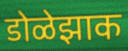
डोळेझाक